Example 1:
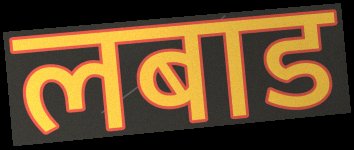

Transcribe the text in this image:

लबाड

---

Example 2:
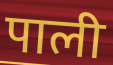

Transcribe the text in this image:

पाली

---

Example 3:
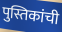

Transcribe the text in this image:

पुस्तिकांची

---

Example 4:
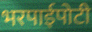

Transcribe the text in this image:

भरपाईपोटी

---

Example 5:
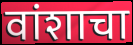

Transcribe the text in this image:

वांशाचा